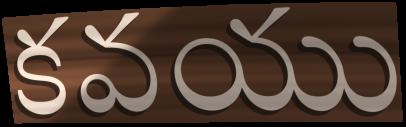
కవయు